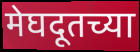
मेघदूतच्या